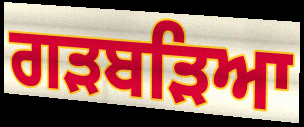
ਗੜਬੜਿਆ